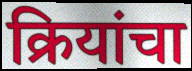
क्रियांचा